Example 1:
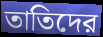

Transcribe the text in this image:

তাতিদের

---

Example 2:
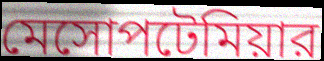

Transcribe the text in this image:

মেসোপটেমিয়ার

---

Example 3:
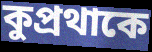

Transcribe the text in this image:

কুপ্রথাকে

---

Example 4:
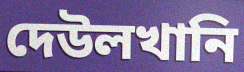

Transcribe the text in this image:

দেউলখানি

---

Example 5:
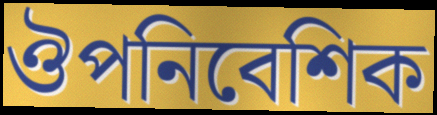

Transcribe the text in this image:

ঔপনিবেশিক